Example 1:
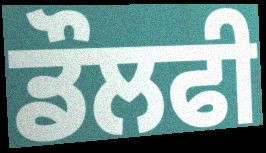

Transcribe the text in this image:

ਡੌਲਫੀ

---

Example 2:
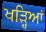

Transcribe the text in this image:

ਖੜ੍ਹਿਆਂ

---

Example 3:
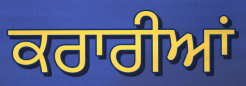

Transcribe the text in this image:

ਕਰਾਰੀਆਂ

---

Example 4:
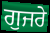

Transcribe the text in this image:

ਗੁਜਰੇ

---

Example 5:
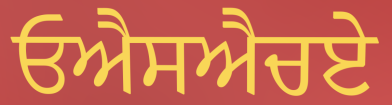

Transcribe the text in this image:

ਓਐਸਐਚਏ